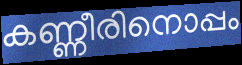
കണ്ണീരിനൊപ്പം